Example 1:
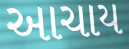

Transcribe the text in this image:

આચાય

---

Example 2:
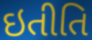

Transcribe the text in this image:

ઇતીતિ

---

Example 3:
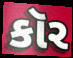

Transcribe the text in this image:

કૉર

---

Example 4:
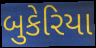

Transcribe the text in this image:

બુકેરિયા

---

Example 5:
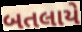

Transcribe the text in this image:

બતલાયે